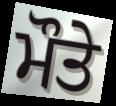
ਮੌਤੇ